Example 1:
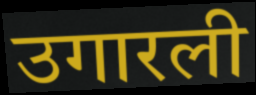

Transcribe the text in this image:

उगारली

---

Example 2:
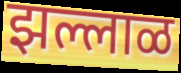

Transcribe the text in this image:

झल्लाळ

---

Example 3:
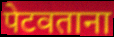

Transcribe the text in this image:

पेटवताना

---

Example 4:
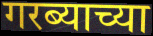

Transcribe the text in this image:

गरब्याच्या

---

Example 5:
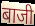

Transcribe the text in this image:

बाजी